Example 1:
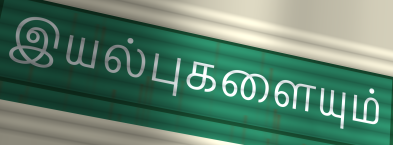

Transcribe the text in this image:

இயல்புகளையும்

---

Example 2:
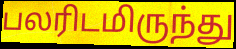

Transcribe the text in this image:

பலரிடமிருந்து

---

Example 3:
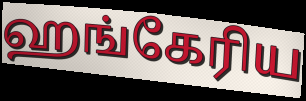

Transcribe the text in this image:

ஹங்கேரிய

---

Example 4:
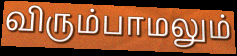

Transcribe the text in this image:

விரும்பாமலும்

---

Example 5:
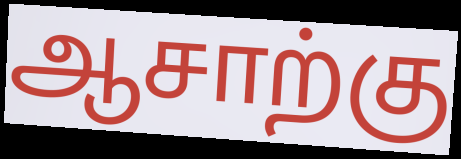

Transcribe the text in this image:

ஆசாற்கு